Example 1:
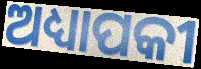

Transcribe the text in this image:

ଅଧ୍ୟାପକୀ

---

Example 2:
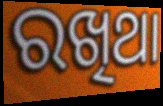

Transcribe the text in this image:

ରଖିଥା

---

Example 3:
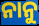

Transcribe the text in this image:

ନାନୁ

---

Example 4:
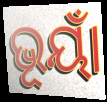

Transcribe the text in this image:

ଭୂୟାଁ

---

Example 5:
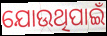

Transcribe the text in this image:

ଯୋଉଥିପାଇଁ